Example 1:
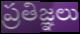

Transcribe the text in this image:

ప్రతిజ్ఞలు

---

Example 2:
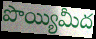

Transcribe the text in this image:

పొయ్యిమీద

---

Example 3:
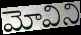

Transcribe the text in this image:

మోవిని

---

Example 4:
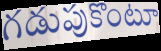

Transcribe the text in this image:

గడుపుకొంటూ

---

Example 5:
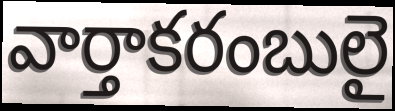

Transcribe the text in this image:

వార్తాకరంబులై